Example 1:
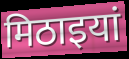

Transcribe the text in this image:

मिठाइयां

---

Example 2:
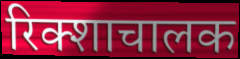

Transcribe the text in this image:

रिक्शाचालक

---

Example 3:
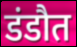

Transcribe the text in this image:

डंडौत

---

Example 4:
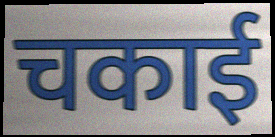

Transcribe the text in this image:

चकाई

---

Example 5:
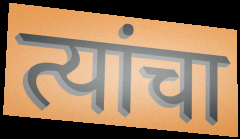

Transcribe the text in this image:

त्यांचा